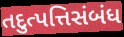
તદુત્પત્તિસંબંધ